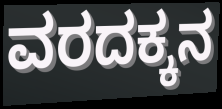
ವರದಕ್ಕನ